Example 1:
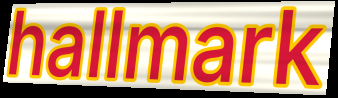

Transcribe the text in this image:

hallmark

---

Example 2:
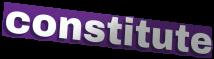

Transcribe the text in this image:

constitute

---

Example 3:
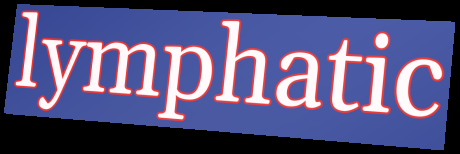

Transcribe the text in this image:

lymphatic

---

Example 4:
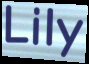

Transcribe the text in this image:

Lily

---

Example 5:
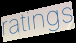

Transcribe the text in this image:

ratings